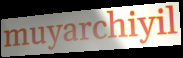
muyarchiyil